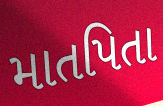
માતપિતા